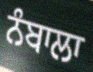
ਨੰਬਾਲਾ